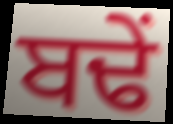
ਬਢੇਂ